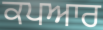
ਕਪਆਰ